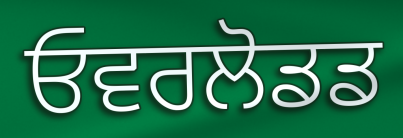
ਓਵਰਲੋਡਡ